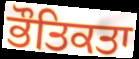
ਭੌਤਿਕਤਾ